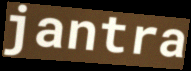
jantra